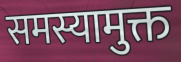
समस्यामुक्त